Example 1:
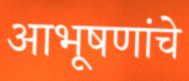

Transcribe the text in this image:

आभूषणांचे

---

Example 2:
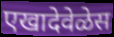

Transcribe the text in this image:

एखादेवेळेस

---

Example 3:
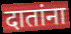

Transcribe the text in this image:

दातांना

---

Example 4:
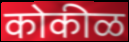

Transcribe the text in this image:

कोकीळ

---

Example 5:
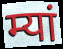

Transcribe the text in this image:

म्यां